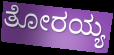
ತೋರಯ್ಯ